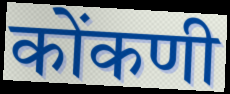
कोंकणी